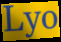
Lyo